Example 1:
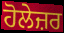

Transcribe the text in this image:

ਹੋਲੇਜ਼ਰ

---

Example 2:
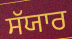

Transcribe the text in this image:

ਸੱਯਾਰ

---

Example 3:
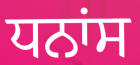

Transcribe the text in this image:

ਧਨਾਂਸ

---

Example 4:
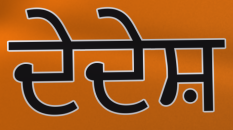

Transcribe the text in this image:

ਦੇਦੇਸ਼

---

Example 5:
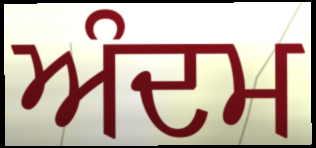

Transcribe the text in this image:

ਅੰਦਮ